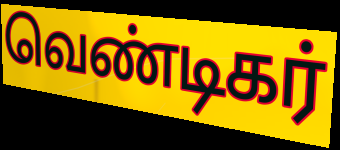
வெண்டிகர்